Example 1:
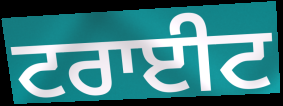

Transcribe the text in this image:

ਟਰਾਈਟ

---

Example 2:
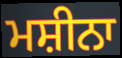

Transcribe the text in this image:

ਮਸ਼ੀਨਾ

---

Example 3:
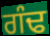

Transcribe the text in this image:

ਗੰਢ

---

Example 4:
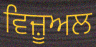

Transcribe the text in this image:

ਵਿਜ਼ੂਅਲ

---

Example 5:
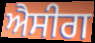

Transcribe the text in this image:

ਐਸੀਗ